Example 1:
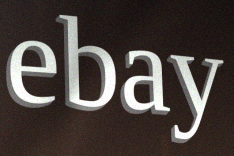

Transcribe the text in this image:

ebay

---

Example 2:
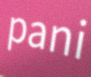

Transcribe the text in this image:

pani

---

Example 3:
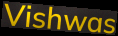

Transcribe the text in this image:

Vishwas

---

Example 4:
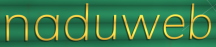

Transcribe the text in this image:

naduweb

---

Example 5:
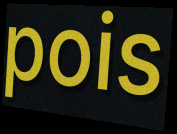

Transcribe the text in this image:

pois